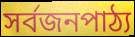
সর্বজনপাঠ্য